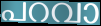
പറവാ